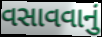
વસાવવાનું